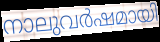
നാലുവർഷമായി